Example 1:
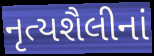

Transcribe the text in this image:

નૃત્યશૈલીનાં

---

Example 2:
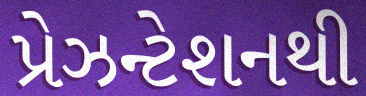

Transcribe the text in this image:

પ્રેઝન્ટેશનથી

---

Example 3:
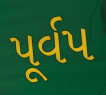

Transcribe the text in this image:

પૂર્વપ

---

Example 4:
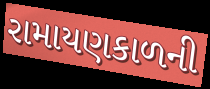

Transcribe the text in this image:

રામાયણકાળની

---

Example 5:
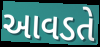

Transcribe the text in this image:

આવડતે